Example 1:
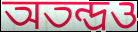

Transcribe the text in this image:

অতন্দ্রও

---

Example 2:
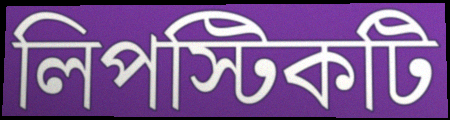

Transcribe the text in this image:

লিপস্টিকটি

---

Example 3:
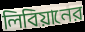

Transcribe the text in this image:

লিবিয়ানের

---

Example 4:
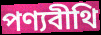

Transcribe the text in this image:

পণ্যবীথি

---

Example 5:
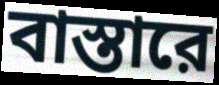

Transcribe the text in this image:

বাস্তারে